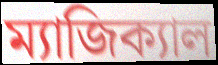
ম্যাজিক্যাল